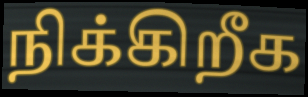
நிக்கிறீக